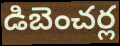
డిబెంచర్ల